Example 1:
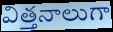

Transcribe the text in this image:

విత్తనాలుగా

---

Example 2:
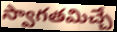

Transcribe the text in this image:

స్వాగతమిచ్చే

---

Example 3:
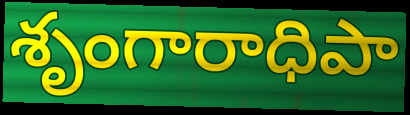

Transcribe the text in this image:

శృంగారాధిపా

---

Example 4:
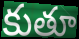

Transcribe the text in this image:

కుతూ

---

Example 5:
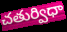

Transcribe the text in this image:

చతుర్విధా